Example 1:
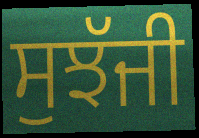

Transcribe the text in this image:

ਸੁਝੱਜੀ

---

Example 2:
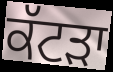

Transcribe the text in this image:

ਕੱਟੜਾ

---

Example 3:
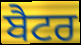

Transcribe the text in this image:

ਬੈਟਰ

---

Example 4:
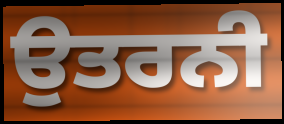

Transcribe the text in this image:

ਉਤਰਨੀ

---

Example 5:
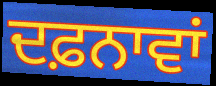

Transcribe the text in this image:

ਦਫ਼ਨਾਵਾਂ